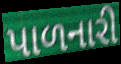
પાળનારી